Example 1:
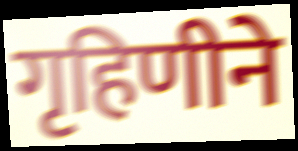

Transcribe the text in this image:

गृहिणीने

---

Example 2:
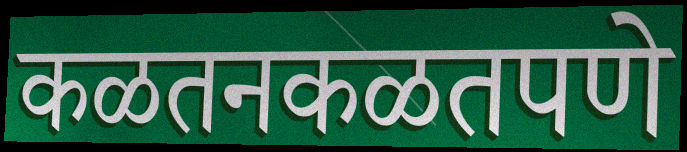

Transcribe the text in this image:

कळतनकळतपणे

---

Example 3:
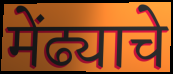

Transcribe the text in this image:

मेंढ्याचे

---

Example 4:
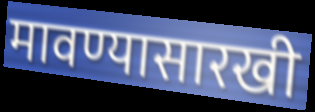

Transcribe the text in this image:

मावण्यासारखी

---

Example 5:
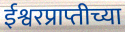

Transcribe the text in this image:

ईश्वरप्राप्तीच्या